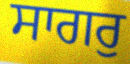
ਸਾਗਰੁ